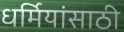
धर्मियांसाठी